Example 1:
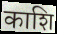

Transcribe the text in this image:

काशि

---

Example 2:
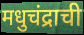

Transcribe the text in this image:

मधुचंद्राची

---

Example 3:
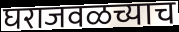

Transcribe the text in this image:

घराजवळच्याच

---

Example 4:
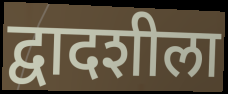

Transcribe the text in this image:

द्वादशीला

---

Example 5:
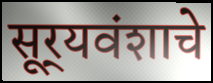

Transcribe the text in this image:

सूर्यवंशाचे